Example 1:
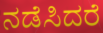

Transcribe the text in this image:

ನಡೆಸಿದರೆ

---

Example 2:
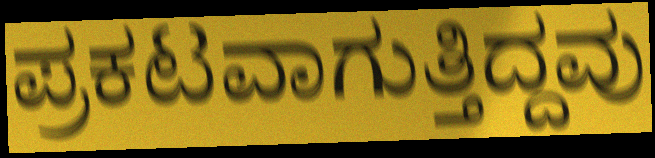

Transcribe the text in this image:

ಪ್ರಕಟವಾಗುತ್ತಿದ್ದವು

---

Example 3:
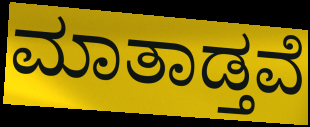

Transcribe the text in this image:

ಮಾತಾಡ್ತವೆ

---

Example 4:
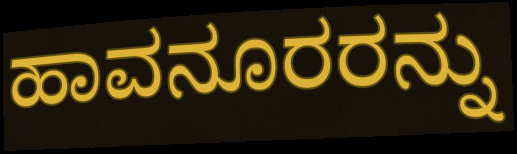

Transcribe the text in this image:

ಹಾವನೂರರನ್ನು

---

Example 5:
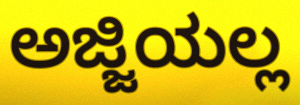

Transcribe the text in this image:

ಅಜ್ಜಿಯಲ್ಲ